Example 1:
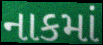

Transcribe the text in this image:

નાકમાં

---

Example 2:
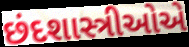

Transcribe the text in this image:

છંદશાસ્ત્રીઓએ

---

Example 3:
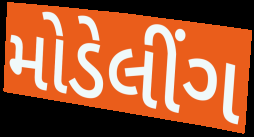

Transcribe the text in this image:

મોડેલીંગ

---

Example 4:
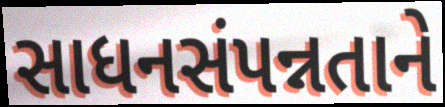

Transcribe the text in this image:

સાધનસંપન્નતાને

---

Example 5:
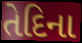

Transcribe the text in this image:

તેદિના